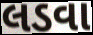
લડવા